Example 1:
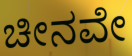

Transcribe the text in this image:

ಚೀನವೇ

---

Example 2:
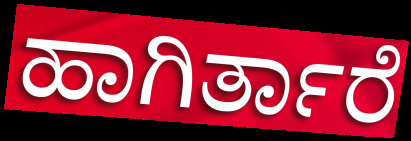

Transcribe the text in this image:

ಹಾಗಿರ್ತಾರೆ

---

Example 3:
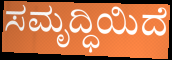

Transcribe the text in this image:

ಸಮೃದ್ಧಿಯಿದೆ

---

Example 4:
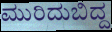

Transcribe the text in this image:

ಮುರಿದುಬಿದ್ದ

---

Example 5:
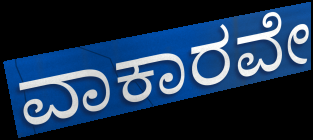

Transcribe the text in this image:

ವಾಕಾರವೇ